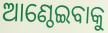
ଆଣ୍ଠେଇବାକୁ